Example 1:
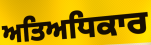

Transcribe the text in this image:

ਅਤਿਅਧਿਕਾਰ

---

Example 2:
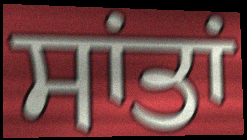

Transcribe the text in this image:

ਸਾਂਤਾਂ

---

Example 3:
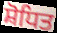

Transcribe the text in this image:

ਸ਼ੋਧਿਤ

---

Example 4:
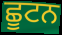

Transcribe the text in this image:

ਛੂਟਨ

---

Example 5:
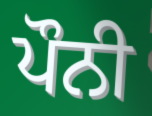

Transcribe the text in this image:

ਪੌਨੀ